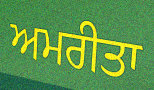
ਅਮਰੀਤਾ